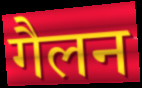
गैलन